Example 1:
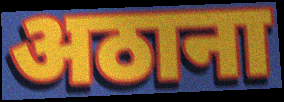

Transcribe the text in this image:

अठाना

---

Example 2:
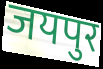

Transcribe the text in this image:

जयपुर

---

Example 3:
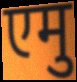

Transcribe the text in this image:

एमु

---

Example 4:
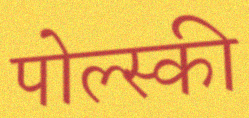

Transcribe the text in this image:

पोल्स्की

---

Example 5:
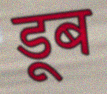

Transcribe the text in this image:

डूब